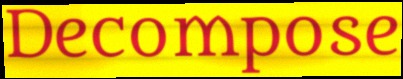
Decompose